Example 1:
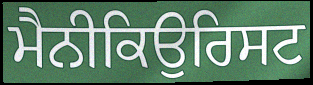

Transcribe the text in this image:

ਮੈਨੀਕਿਉਰਿਸਟ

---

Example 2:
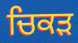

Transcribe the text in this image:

ਚਿਕੜ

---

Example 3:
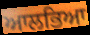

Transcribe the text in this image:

ਆਲਭਿਆ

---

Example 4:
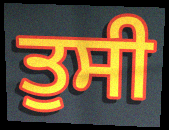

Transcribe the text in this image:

ਤੁਸੀ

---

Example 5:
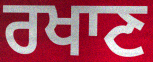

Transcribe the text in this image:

ਰਖਾਣ